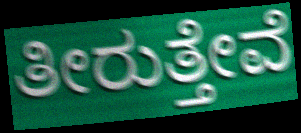
ತೀರುತ್ತೇವೆ